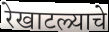
रेखाटल्याचे